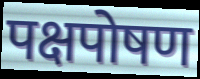
पक्षपोषण